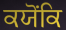
ਕਯੋਂਕਿ